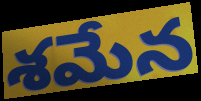
శమేన